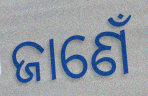
ଜାଣେଁ